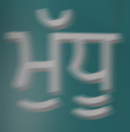
ਮੁੱਧੂ